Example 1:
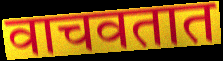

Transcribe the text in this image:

वाचवतात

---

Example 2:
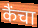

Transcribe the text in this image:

कैंचा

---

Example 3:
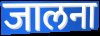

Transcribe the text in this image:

जालना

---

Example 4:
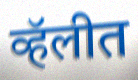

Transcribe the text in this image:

व्हॅलीत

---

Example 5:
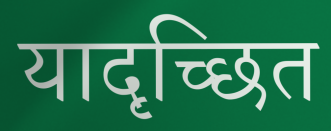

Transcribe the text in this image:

यादृच्छित